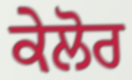
ਕੇਲੋਰ